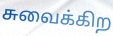
சுவைக்கிற